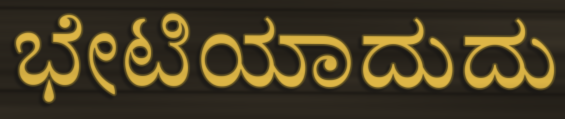
ಭೇಟಿಯಾದುದು